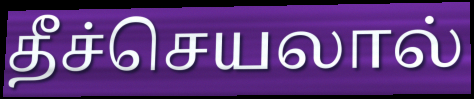
தீச்செயலால்